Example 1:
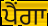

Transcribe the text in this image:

ਪੈਂਗਾ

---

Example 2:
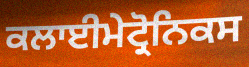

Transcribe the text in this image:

ਕਲਾਈਮੇਟ੍ਰੋਨਿਕਸ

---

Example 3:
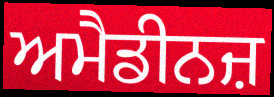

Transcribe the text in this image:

ਅਮੈਡੀਨਜ਼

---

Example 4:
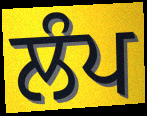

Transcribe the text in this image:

ਲੰਪ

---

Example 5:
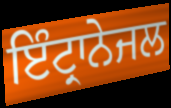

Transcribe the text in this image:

ਇੰਟ੍ਰਾਨੇਜਲ